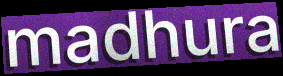
madhura